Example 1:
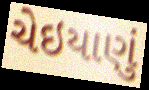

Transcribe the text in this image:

ચેઇયાણું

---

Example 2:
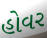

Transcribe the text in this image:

હોવર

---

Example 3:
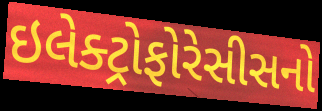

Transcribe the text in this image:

ઇલેક્ટ્રોફોરેસીસનો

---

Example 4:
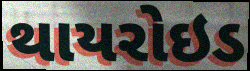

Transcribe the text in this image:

થાયરોઇડ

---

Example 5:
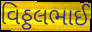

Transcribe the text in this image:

વિઠ્ઠલભાઈ